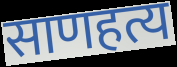
साणहत्य